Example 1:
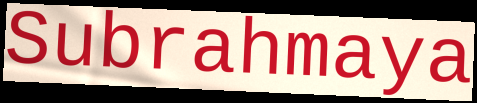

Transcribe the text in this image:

Subrahmaya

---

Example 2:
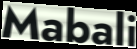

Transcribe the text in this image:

Mabali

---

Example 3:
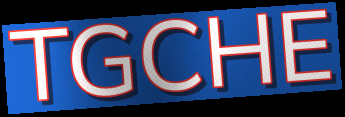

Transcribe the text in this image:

TGCHE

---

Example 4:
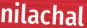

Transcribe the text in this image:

nilachal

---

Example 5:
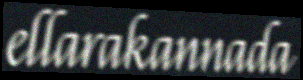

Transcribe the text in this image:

ellarakannada